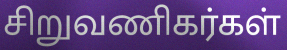
சிறுவணிகர்கள்